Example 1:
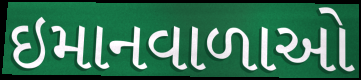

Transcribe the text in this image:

ઇમાનવાળાઓ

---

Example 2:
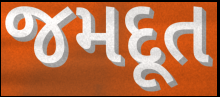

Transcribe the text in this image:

જમદૂત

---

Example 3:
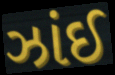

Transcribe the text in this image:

ઝાંઈ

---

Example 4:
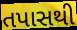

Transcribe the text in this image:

તપાસથી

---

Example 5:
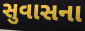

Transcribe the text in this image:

સુવાસના